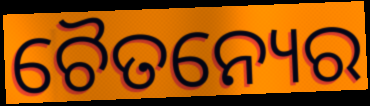
ଚୈତନ୍ୟେର